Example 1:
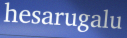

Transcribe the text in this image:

hesarugalu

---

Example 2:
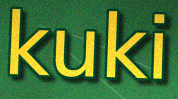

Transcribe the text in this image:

kuki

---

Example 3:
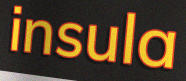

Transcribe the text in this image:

insula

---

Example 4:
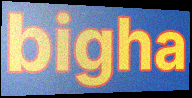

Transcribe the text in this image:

bigha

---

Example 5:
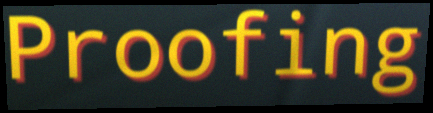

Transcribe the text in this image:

Proofing